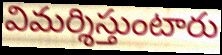
విమర్శిస్తుంటారు